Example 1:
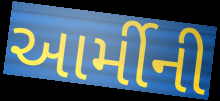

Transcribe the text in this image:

આર્મીની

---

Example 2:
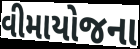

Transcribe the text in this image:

વીમાયોજના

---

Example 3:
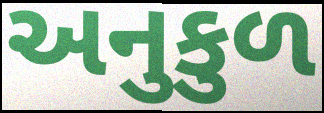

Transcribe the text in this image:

અનુકુળ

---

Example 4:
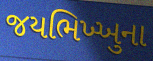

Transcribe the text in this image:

જયભિખ્ખુના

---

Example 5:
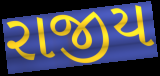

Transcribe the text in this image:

રાજીય